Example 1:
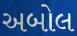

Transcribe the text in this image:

અબોલ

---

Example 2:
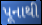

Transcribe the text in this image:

પૂનાથી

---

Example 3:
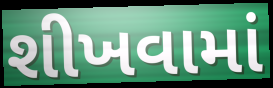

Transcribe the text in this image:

શીખવામાં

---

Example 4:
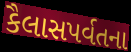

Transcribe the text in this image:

કૈલાસપર્વતના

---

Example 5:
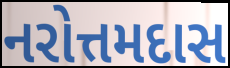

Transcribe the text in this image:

નરોત્તમદાસ